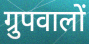
ग्रुपवालों